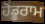
ਹੋਂਡੂਰਾਮ